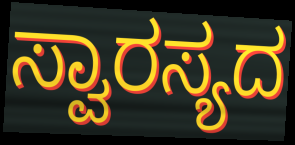
ಸ್ವಾರಸ್ಯದ